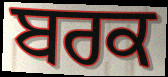
ਬਰਕ